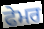
ਫੇਮਰ